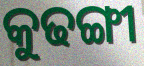
କୁଢଙ୍ଗୀ